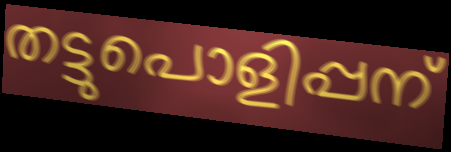
തട്ടുപൊളിപ്പന്